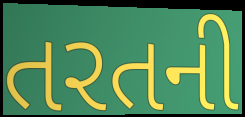
તરતની